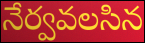
నేర్వవలసిన